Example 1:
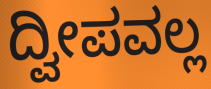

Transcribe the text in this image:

ದ್ವೀಪವಲ್ಲ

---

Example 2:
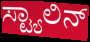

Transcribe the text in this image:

ಸ್ಟ್ಯಾಲಿನ್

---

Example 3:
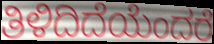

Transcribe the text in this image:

ತಿಳಿದಿದೆಯೆಂದರೆ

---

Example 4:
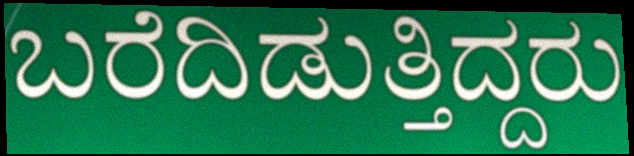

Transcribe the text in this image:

ಬರೆದಿಡುತ್ತಿದ್ದರು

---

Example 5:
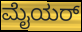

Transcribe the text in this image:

ಮೈಯರ್